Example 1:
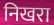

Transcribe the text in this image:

निखरा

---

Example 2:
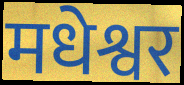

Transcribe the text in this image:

मधेश्वर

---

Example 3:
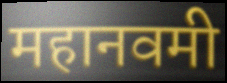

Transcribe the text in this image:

महानवमी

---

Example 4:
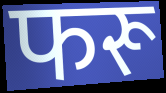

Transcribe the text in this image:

फरू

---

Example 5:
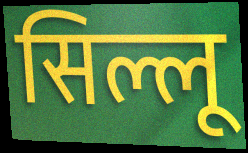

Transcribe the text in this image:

सिल्लू